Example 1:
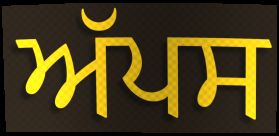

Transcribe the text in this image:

ਅੱਪਸ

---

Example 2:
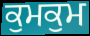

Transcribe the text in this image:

ਕੁਮਕੁਮ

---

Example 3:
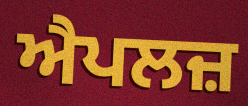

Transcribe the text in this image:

ਐਪਲਜ਼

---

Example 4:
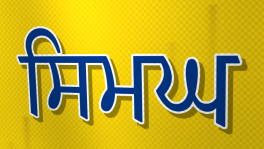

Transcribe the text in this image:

ਸਿਮਘ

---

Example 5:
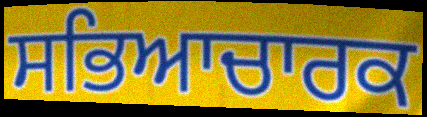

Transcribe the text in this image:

ਸਭਿਆਚਾਰਕ